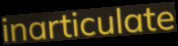
inarticulate